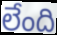
లేంది